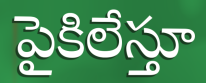
పైకిలేస్తూ